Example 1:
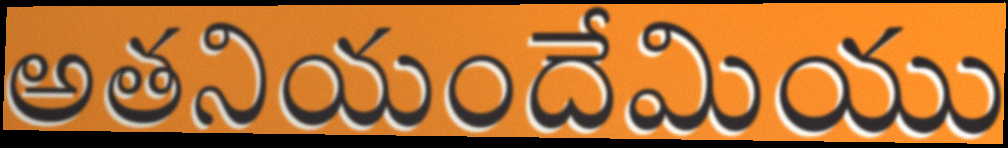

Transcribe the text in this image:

అతనియందేమియు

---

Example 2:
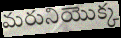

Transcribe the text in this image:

మరునియొక్క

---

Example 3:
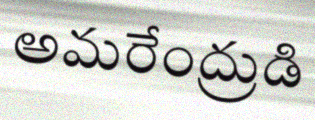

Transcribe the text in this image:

అమరేంద్రుడి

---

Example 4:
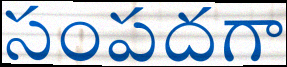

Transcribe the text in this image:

సంపదగా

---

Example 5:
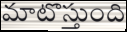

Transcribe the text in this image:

మాటొస్తుంది